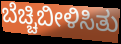
ಬೆಚ್ಚಿಬೀಳಿಸಿತು